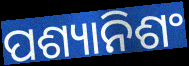
ପଶ୍ୟାନିଶଂ